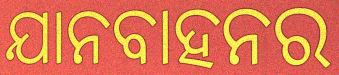
ଯାନବାହନର